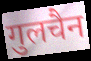
गुलचैन